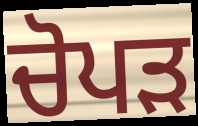
ਚੋਪੜ